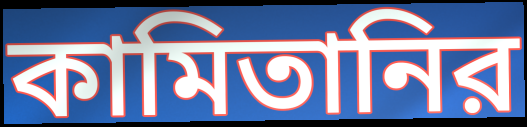
কামিতানির